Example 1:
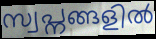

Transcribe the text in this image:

സ്വപ്നങ്ങളിൽ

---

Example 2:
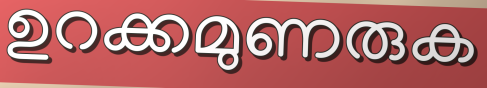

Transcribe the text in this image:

ഉറക്കമുണരുക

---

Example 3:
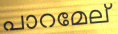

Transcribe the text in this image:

പാറമേല്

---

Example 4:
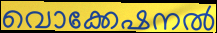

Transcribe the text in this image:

വൊക്കേഷനൽ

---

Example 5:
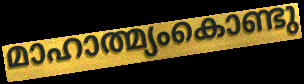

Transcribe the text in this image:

മാഹാത്മ്യംകൊണ്ടു